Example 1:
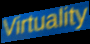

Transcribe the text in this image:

Virtuality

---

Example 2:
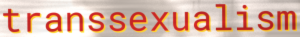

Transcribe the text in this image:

transsexualism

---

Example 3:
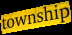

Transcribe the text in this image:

township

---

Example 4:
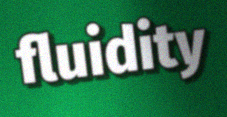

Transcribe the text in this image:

fluidity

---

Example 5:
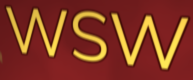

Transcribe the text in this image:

WSW